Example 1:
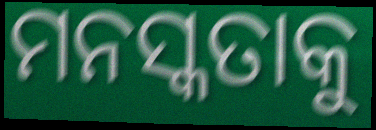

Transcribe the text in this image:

ମନସ୍କତାକୁ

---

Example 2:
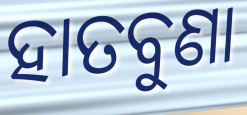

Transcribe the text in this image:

ହାତବୁଣା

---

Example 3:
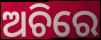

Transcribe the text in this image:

ଅଚିରେ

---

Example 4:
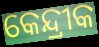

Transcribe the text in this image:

କେନ୍ଦ୍ରୀକ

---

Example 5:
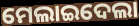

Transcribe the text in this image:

ମେଲାଇଦେଲା